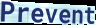
Prevent